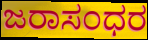
ಜರಾಸಂಧರ